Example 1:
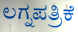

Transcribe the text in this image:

ಲಗ್ನಪತ್ರಿಕೆ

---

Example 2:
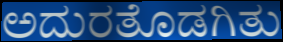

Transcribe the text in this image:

ಅದುರತೊಡಗಿತು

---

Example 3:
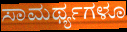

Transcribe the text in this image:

ಸಾಮರ್ಥ್ಯಗಳೂ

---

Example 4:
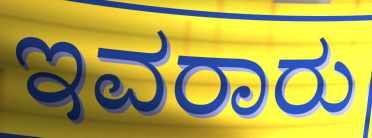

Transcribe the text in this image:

ಇವರಾರು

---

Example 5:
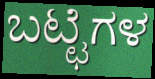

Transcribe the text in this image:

ಬಟ್ಟೆಗಳ